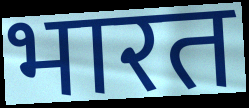
भारत